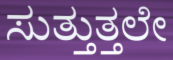
ಸುತ್ತುತ್ತಲೇ